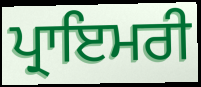
ਪ੍ਰਾਇਮਰੀ